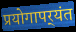
प्रयोगापर्यंत